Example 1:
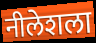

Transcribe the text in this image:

नीलेशला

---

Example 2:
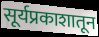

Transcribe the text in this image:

सूर्यप्रकाशातून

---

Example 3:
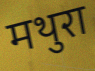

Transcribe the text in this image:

मथुरा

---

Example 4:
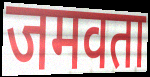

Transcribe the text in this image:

जमवता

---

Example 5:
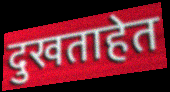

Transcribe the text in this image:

दुखताहेत